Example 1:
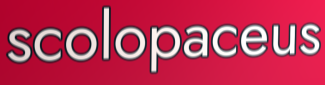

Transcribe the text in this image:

scolopaceus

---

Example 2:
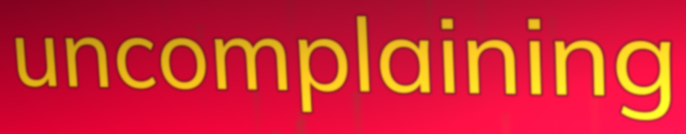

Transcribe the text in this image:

uncomplaining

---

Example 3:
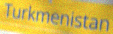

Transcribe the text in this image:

Turkmenistan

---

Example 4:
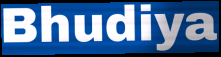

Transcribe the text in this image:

Bhudiya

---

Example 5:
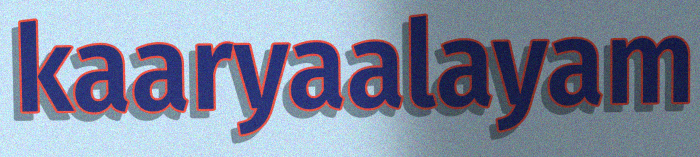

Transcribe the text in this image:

kaaryaalayam